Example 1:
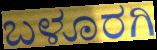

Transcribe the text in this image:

ಬಳೂರಗಿ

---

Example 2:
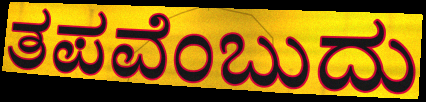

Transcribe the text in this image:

ತಪವೆಂಬುದು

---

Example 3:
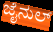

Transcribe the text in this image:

ಜೈನುಲ್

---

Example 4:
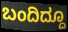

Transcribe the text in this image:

ಬಂದಿದ್ದೂ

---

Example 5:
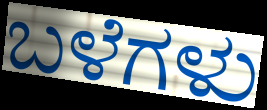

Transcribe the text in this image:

ಬಳೆಗಳು